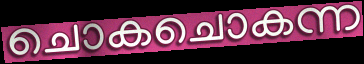
ചൊകചൊകന്ന